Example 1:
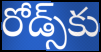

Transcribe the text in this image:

రోడ్స్‌కు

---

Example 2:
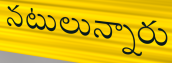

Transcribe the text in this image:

నటులున్నారు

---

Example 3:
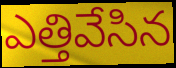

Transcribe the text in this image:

ఎత్తివేసిన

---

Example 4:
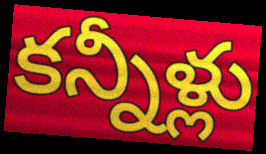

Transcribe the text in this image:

కన్నీళ్లు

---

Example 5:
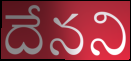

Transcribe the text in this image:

దేనని